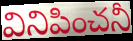
వినిపించనీ